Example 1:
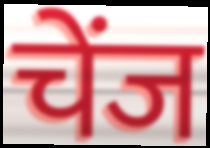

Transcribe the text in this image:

चेंज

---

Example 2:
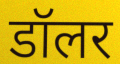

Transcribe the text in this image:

डॉलर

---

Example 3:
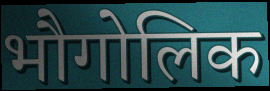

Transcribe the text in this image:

भौगोलिक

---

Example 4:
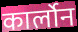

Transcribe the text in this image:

कार्लोन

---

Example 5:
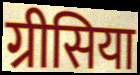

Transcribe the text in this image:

ग्रीसिया